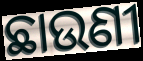
ଛାଉଣୀ